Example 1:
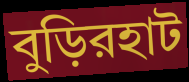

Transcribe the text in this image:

বুড়িরহাট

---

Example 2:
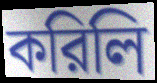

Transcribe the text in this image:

করিলি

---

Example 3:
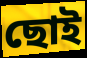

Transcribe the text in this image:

ছোই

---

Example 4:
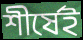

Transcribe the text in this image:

শীর্ষেই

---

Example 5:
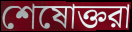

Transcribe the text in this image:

শেষোক্তরা